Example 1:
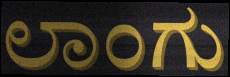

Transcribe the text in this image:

ಲಾಂಗು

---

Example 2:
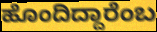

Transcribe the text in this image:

ಹೊಂದಿದ್ದಾರೆಂಬ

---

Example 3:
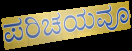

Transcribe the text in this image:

ಪರಿಚಯವೂ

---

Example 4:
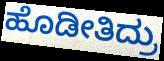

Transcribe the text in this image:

ಹೊಡೀತಿದ್ರು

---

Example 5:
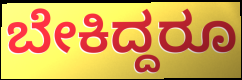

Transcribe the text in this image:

ಬೇಕಿದ್ದರೂ